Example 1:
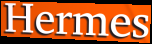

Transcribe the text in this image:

Hermes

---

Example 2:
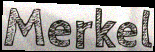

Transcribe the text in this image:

Merkel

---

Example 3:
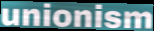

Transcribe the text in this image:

unionism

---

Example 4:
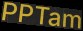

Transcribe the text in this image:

PPTam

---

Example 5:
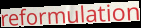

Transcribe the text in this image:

reformulation